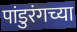
पांडुरंगच्या